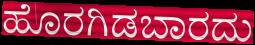
ಹೊರಗಿಡಬಾರದು